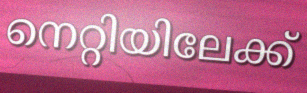
നെറ്റിയിലേക്ക്